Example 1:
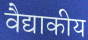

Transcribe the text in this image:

वैद्याकीय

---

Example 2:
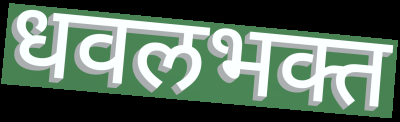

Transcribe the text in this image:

धवलभक्त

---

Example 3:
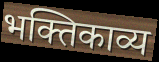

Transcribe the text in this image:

भक्तिकाव्य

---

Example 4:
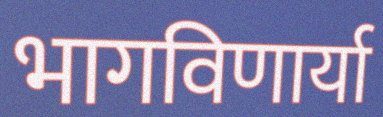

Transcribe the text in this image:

भागविणार्या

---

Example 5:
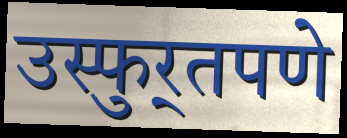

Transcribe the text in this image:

उस्फुर्तपणे